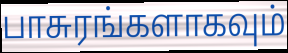
பாசுரங்களாகவும்